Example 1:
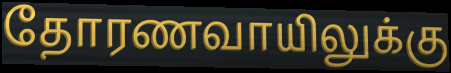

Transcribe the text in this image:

தோரணவாயிலுக்கு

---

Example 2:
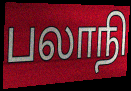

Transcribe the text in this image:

பலாநி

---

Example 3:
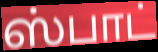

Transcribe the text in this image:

ஸ்பாட்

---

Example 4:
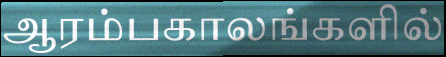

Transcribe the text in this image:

ஆரம்பகாலங்களில்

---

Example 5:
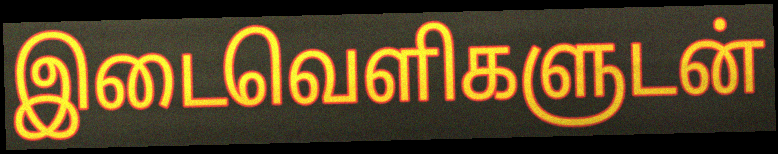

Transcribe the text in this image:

இடைவெளிகளுடன்